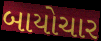
બાયોચાર